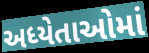
અધ્યેતાઓમાં